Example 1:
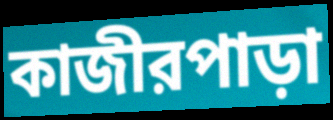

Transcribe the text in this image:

কাজীরপাড়া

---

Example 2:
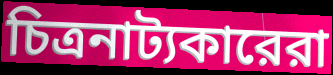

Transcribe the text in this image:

চিত্রনাট্যকারেরা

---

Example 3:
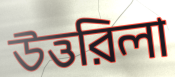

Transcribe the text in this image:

উত্তরিলা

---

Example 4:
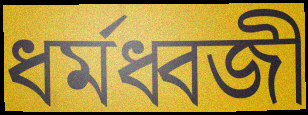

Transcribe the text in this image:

ধর্মধ্বজী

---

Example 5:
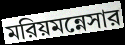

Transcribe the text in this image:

মরিয়মন্নেসার